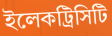
ইলেকট্রিসিটি